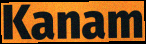
Kanam